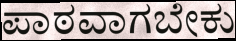
ಪಾಠವಾಗಬೇಕು